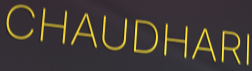
CHAUDHARI